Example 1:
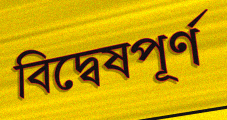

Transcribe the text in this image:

বিদ্বেষপূর্ণ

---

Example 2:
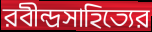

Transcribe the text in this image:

রবীন্দ্রসাহিত্যের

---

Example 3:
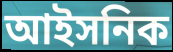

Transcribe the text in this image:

আইসনিক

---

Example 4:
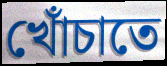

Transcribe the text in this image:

খোঁচাতে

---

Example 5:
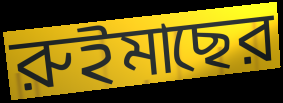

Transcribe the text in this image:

রুইমাছের